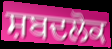
ਸ਼ਬਦਲੋਕ